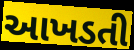
આખડતી